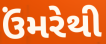
ઉંમરેથી